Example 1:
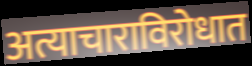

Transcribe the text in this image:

अत्याचाराविरोधात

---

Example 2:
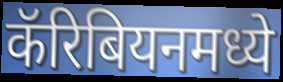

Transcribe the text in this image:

कॅरिबियनमध्ये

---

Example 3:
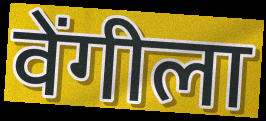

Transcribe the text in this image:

वेंगीला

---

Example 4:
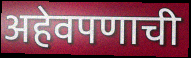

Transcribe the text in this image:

अहेवपणाची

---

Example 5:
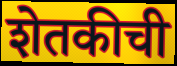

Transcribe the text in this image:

शेतकीची